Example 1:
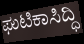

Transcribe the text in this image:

ಘುಟಿಕಾಸಿದ್ಧಿ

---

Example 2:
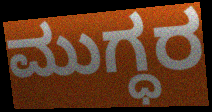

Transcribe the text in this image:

ಮುಗ್ಧರ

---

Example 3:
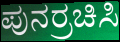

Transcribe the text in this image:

ಪುನರ್ರಚಿಸಿ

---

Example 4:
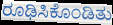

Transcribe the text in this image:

ರೂಢಿಸಿಕೊಂಡಿತು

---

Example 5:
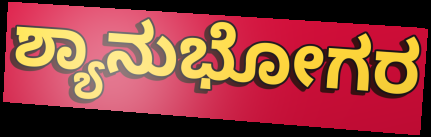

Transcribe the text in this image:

ಶ್ಯಾನುಭೋಗರ